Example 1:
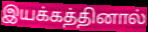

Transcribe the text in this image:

இயக்கத்தினால்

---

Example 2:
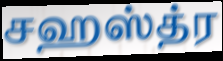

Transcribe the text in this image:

சஹஸ்த்ர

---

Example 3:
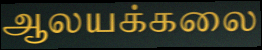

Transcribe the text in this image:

ஆலயக்கலை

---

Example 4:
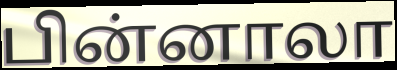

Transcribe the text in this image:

பின்னாலா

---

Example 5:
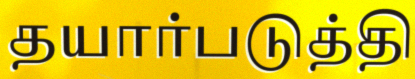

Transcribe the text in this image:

தயார்படுத்தி